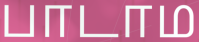
பாடாம